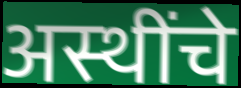
अस्थींचे